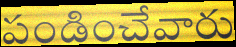
పండించేవారు